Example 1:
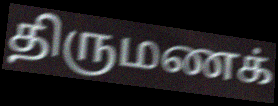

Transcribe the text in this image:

திருமணக்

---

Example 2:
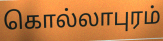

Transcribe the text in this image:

கொல்லாபுரம்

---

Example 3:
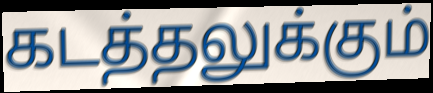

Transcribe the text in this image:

கடத்தலுக்கும்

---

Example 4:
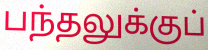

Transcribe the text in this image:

பந்தலுக்குப்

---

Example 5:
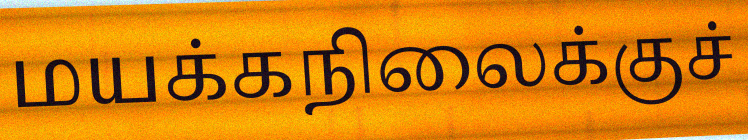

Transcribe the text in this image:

மயக்கநிலைக்குச்